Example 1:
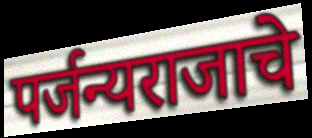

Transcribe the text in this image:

पर्जन्यराजाचे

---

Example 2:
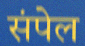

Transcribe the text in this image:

संपेल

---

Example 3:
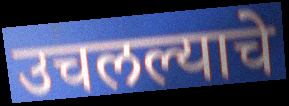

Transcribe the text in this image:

उचलल्याचे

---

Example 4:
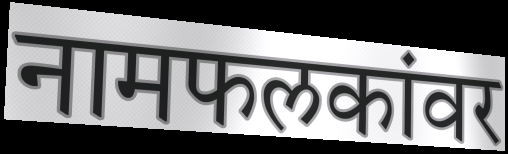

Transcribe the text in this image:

नामफलकांवर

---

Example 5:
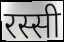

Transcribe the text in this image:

रस्सी